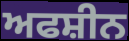
ਅਫਸ਼ੀਨ